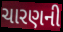
ચારણની